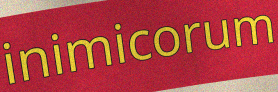
inimicorum